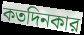
কতদিনকার